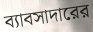
ব্যাবসাদারের